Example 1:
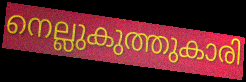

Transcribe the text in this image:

നെല്ലുകുത്തുകാരി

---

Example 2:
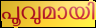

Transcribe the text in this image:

പൂവുമായി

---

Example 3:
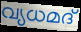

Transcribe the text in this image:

വ്യധമദ്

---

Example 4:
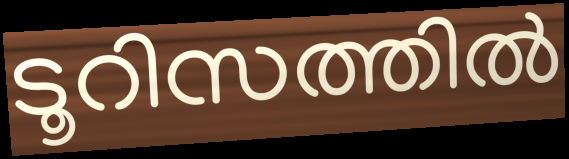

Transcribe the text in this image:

ടൂറിസത്തിൽ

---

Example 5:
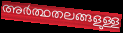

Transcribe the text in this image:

അർത്ഥതലങ്ങളുള്ള